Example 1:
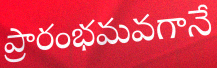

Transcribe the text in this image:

ప్రారంభమవగానే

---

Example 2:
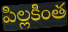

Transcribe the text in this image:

పిల్లకింత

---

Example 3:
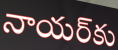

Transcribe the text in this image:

నాయర్‌కు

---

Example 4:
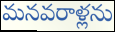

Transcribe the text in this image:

మనవరాళ్లను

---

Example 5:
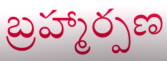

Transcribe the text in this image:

బ్రహ్మార్పణ